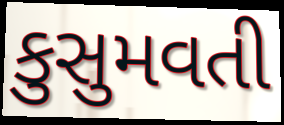
કુસુમવતી